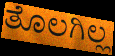
ತೊಲಗಿಲ್ಲ